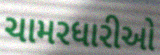
ચામરધારીઓ